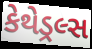
કેથેડ્રલ્સ